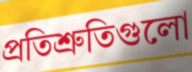
প্রতিশ্রুতিগুলো